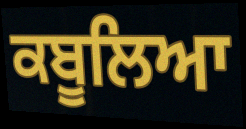
ਕਬੂਲਿਆ